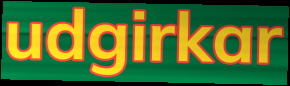
udgirkar